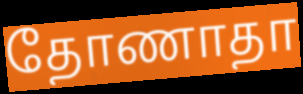
தோணாதா